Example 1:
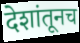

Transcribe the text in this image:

देशांतूनच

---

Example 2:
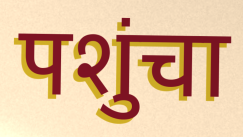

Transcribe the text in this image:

पशुंचा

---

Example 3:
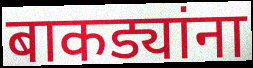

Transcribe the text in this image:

बाकड्यांना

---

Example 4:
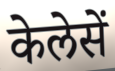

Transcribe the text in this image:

केलेसें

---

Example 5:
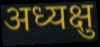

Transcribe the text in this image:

अध्यक्षु